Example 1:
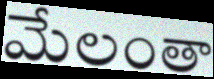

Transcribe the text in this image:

మేలంతా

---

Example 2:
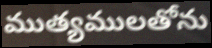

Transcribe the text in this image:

ముత్యములతోను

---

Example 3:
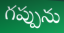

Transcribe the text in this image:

గప్పును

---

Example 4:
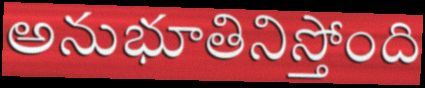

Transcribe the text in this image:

అనుభూతినిస్తోంది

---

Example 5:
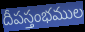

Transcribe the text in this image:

దీపస్తంభముల